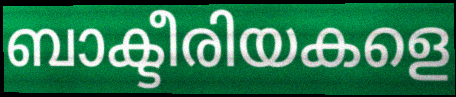
ബാക്ടീരിയകളെ